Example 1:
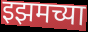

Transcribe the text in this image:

इझमच्या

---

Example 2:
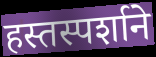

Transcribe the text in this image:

हस्तस्पर्शाने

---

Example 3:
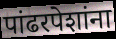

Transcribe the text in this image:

पांढरपेशांना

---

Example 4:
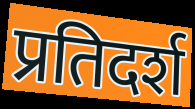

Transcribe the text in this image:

प्रतिदर्श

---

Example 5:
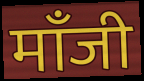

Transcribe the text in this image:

मॉंजी